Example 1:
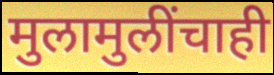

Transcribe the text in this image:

मुलामुलींचाही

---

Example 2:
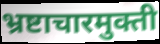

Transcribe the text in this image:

भ्रष्टाचारमुक्ती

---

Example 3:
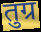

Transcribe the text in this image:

तुग्र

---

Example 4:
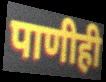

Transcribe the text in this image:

पाणीही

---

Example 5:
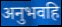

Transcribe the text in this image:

अनुभवहि